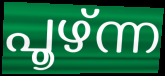
പൂഴ്ന്ന